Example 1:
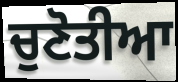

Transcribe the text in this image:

ਚੁਣੋਤੀਆ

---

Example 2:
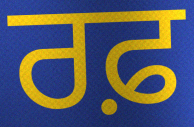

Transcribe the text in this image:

ਰਫ਼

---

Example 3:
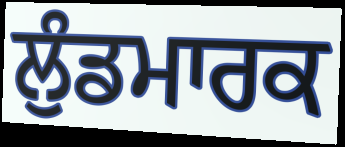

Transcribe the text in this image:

ਲੁੰਡਮਾਰਕ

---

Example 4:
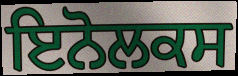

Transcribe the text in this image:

ਇਨੋਲਕਸ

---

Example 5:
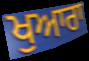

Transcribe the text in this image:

ਖੁਆਰਾ